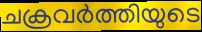
ചക്രവർത്തിയുടെ